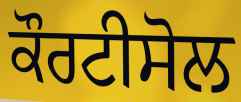
ਕੌਰਟੀਸੋਲ